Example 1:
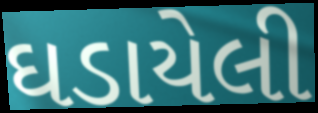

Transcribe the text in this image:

ઘડાયેલી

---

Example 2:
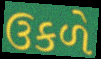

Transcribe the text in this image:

ઉકળે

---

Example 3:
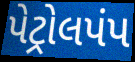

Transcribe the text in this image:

પેટ્રોલપંપ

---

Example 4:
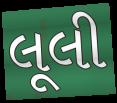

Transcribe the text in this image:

લૂલી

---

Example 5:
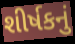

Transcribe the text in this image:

શીર્ષકનું